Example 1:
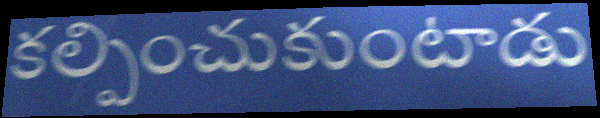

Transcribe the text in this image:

కల్పించుకుంటాడు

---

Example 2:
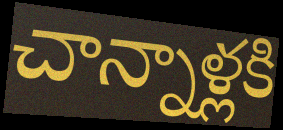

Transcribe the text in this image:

చాన్నాళ్లకి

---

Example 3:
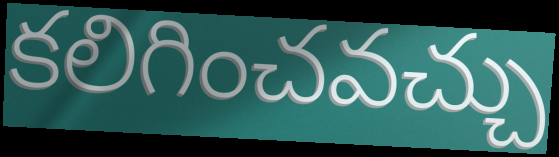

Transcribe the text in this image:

కలిగించవచ్చు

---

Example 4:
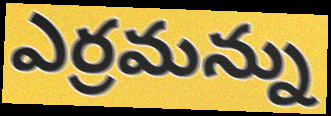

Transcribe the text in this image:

ఎర్రమన్ను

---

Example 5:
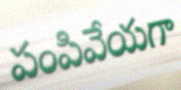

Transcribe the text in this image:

పంపివేయగా